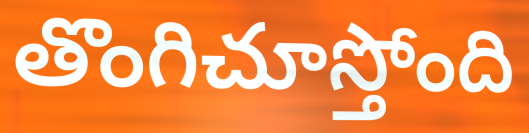
తొంగిచూస్తోంది